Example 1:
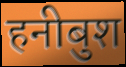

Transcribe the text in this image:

हनीबुश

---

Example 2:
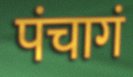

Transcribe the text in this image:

पंचागं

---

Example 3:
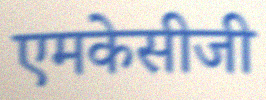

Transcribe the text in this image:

एमकेसीजी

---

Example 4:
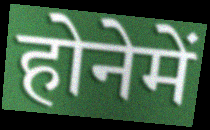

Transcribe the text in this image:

होनेमें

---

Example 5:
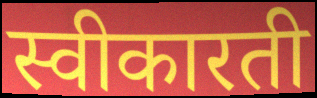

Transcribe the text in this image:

स्वीकारती